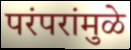
परंपरांमुळे